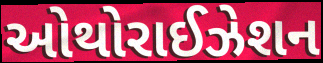
ઓથોરાઈઝેશન